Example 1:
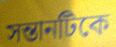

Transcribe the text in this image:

সন্তানটিকে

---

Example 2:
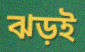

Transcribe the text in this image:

ঝড়ই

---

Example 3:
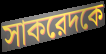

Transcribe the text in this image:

সাকরেদকে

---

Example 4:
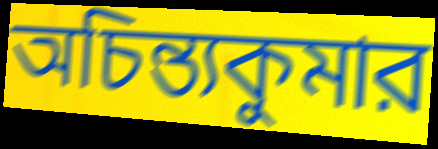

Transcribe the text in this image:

অচিন্ত্যকুমার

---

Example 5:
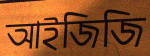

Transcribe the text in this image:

আইজিজি